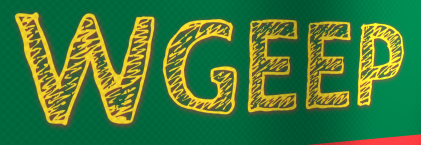
WGEEP